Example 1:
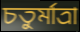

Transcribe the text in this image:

চতুর্মাত্রা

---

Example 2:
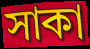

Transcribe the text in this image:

সাকা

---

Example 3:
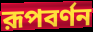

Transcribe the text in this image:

রূপবর্ণন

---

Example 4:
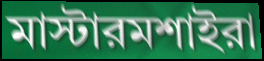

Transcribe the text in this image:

মাস্টারমশাইরা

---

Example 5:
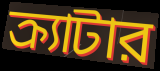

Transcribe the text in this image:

ক্র্যাটার